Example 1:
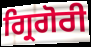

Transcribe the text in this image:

ਗ੍ਰਿਗੋਰੀ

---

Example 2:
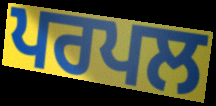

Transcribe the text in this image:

ਪਰਪਲ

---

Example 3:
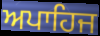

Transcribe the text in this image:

ਅਪਾਹਿਜ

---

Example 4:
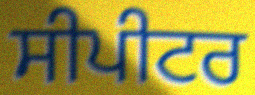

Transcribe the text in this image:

ਸੀਪੀਟਰ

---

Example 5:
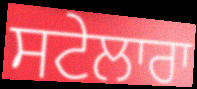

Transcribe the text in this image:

ਸਟੇਲਾਰਾ